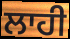
ਲਾਹੀ